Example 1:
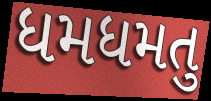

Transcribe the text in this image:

ધમધમતુ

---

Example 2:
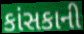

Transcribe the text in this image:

કાંસકાની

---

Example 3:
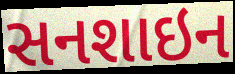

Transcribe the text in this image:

સનશાઇન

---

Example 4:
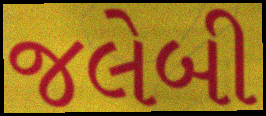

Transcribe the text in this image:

જલેબી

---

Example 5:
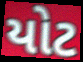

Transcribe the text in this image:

યોટ